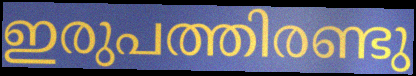
ഇരുപത്തിരണ്ടു